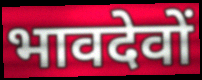
भावदेवों